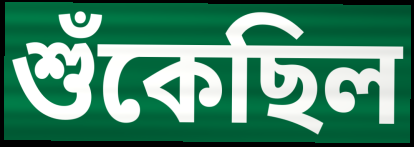
শুঁকেছিল